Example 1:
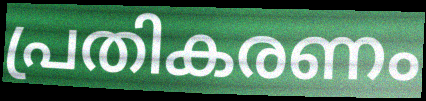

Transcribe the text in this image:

പ്രതികരണം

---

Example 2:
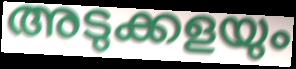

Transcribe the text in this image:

അടുക്കളയും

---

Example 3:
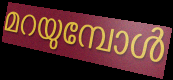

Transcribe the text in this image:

മറയുമ്പോൾ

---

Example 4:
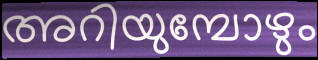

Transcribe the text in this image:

അറിയുമ്പോഴും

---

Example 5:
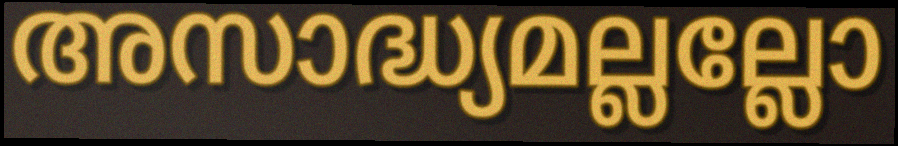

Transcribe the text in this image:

അസാദ്ധ്യമല്ലല്ലോ